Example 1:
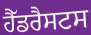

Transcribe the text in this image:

ਹੈੱਡਰੈਸਟਸ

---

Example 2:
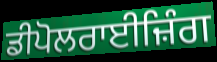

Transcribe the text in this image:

ਡੀਪੋਲਰਾਈਜ਼ਿੰਗ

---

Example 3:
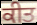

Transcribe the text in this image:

ਕੀਤ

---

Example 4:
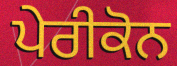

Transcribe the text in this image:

ਪੇਰੀਕੋਨ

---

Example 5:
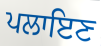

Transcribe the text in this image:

ਪਲਾਇਣ